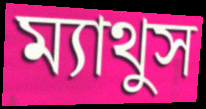
ম্যাথুস